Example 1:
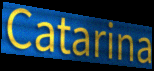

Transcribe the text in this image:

Catarina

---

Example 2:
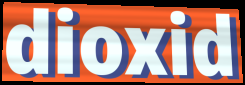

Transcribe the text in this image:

dioxid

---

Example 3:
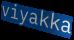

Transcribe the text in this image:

viyakka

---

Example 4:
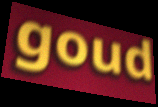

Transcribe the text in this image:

goud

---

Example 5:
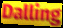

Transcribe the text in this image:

Dalling